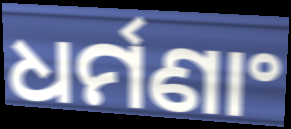
ଧର୍ମଣାଂ